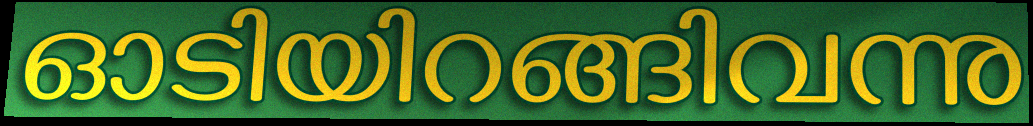
ഓടിയിറങ്ങിവന്നു